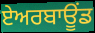
ਏਅਰਬਾਊਂਡ